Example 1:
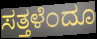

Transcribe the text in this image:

ಸತ್ತಳೆಂದೂ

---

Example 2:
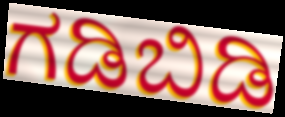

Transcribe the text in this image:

ಗಡಿಬಿಡಿ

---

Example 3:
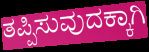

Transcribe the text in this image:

ತಪ್ಪಿಸುವುದಕ್ಕಾಗಿ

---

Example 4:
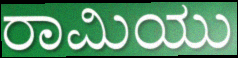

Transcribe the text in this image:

ರಾಮಿಯು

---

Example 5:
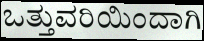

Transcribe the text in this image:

ಒತ್ತುವರಿಯಿಂದಾಗಿ